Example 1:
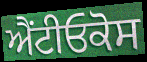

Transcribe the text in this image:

ਐਂਟੀਓਕੋਸ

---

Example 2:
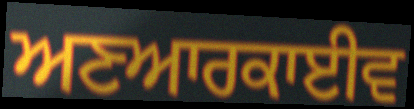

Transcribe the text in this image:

ਅਣਆਰਕਾਈਵ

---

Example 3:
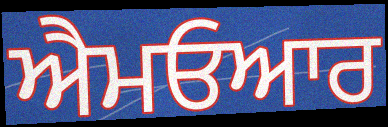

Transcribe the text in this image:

ਐਮਓਆਰ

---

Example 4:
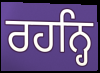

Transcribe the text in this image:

ਰਹਨ੍ਹਿ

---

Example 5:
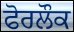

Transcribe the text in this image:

ਫੋਰਲੌਕ